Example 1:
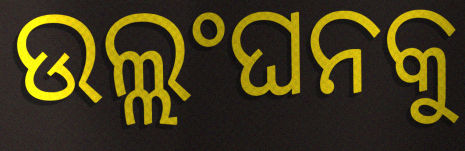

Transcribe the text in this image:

ଉଲ୍ଲଂଘନକୁ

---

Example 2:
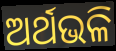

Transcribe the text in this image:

ଅର୍ଥଭଳି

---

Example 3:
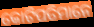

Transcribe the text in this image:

କୋଟିପତିମାନେ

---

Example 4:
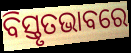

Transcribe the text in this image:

ବିସ୍ତୃତଭାବରେ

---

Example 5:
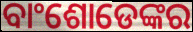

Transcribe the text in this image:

ବାଂଶୋଡେଙ୍କର